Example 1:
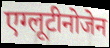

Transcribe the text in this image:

एग्लूटीनोजेन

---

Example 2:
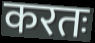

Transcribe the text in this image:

करतः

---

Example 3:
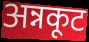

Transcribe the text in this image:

अन्नकूट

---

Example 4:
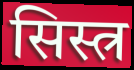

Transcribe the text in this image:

सिस्त्र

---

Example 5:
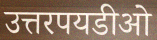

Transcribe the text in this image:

उत्तरपयडीओ